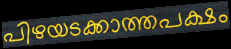
പിഴയടക്കാത്തപക്ഷം